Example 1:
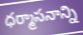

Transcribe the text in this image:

ధర్మాసనాన్ని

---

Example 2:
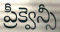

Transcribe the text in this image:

ప్రీక్వెన్సీ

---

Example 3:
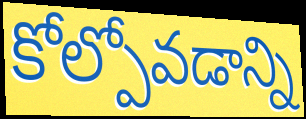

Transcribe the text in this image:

కోల్పోవడాన్ని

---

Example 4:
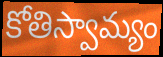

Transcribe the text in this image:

కోతిస్వామ్యం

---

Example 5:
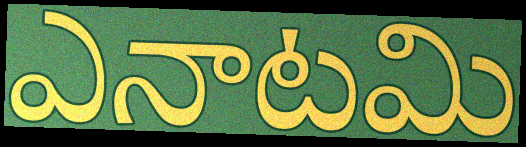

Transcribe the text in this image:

ఎనాటమి